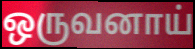
ஒருவனாய்